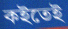
কইতেই